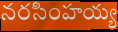
నరసింహయ్య